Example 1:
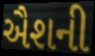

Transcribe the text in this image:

ઐશની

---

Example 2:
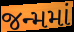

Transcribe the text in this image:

જન્મમાં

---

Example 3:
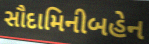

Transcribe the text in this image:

સૌદામિનીબહેન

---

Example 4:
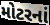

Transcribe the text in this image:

મોટરનાં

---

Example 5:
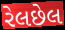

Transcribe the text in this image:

રેલછેલ